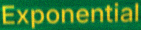
Exponential